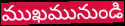
ముఖమునుండి